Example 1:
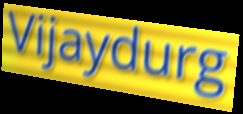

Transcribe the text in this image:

Vijaydurg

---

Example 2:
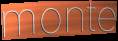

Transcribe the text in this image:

monte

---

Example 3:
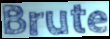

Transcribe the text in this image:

Brute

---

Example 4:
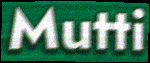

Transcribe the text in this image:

Mutti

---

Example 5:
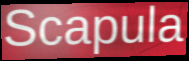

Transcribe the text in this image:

Scapula